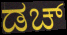
ಡಚ್